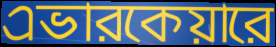
এভারকেয়ারে